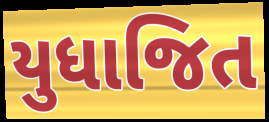
યુધાજિત